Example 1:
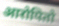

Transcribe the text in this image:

आरोपितो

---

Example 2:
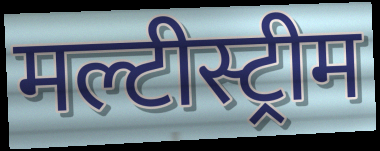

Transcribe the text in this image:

मल्टीस्ट्रीम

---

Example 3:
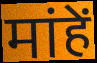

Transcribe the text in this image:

मांहें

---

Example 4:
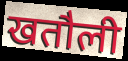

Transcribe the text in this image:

खतौली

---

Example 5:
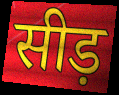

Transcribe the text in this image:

सीड़